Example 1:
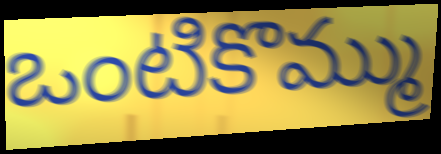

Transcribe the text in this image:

ఒంటికొమ్ము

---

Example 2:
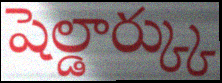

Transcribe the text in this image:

షెల్డార్క్కు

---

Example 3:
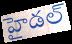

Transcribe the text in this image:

హైడల్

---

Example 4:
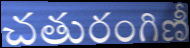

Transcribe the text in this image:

చతురంగిణీ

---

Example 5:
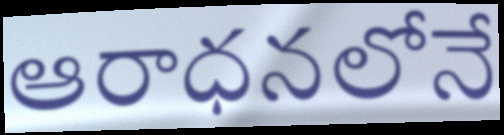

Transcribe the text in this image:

ఆరాధనలోనే